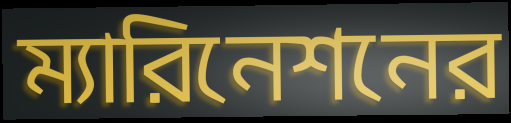
ম্যারিনেশনের